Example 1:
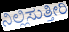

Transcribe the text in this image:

ನಿಲ್ಲಿಸುತ್ತೀರಿ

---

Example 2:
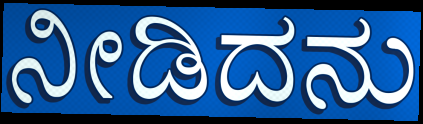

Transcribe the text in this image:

ನೀಡಿದನು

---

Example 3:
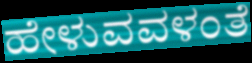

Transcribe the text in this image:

ಹೇಳುವವಳಂತೆ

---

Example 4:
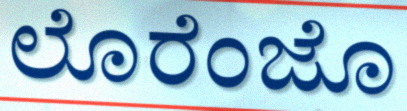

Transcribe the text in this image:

ಲೊರೆಂಜೊ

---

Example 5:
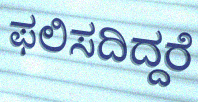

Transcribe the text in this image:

ಫಲಿಸದಿದ್ದರೆ